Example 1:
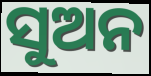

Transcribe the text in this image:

ସୁଅନ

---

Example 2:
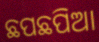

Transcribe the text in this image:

ଛପଛପିଆ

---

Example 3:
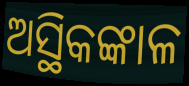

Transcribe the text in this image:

ଅସ୍ଥିକଙ୍କାଳ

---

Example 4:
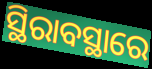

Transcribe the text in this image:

ସ୍ଥିରାବସ୍ଥାରେ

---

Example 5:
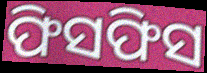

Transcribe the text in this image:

ଫିସଫିସ